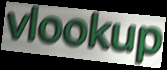
vlookup